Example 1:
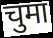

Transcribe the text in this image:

चुमा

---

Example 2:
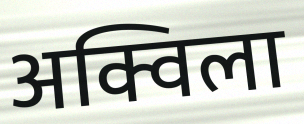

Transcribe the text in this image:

अक्विला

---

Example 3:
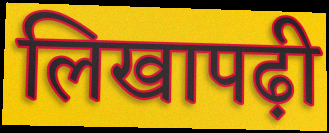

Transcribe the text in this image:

लिखापढ़ी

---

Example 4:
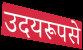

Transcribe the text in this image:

उदयरूपसे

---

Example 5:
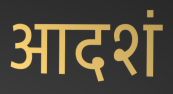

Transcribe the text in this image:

आदशं